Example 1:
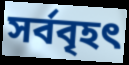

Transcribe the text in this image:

সৰ্ববৃহৎ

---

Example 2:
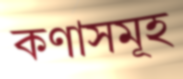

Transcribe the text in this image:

কণাসমূহ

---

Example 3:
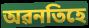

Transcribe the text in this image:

অৱনতিহে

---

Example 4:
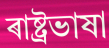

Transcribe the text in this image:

ৰাষ্ট্ৰভাষা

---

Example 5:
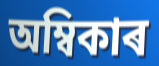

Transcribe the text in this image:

অম্বিকাৰ